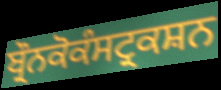
ਬ੍ਰੌਨਕੋਕੰਸਟ੍ਰਕਸ਼ਨ